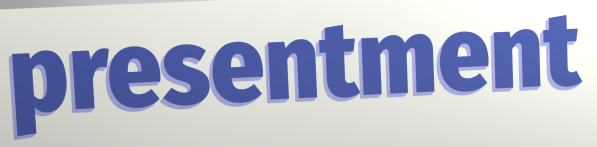
presentment